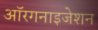
ऑरगनाइजेशन